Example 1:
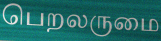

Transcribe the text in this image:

பெறலருமை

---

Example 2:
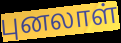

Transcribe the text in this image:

புனலாள்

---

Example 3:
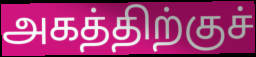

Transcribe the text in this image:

அகத்திற்குச்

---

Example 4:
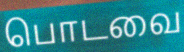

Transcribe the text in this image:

பொடவை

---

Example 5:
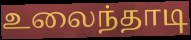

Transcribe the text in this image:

உலைந்தாடி